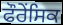
ਫੌਰੇਂਸਿਕ